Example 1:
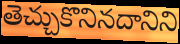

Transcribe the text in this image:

తెచ్చుకొనినదానిని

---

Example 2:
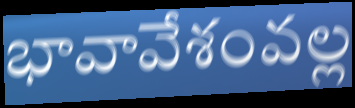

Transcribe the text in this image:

భావావేశంవల్ల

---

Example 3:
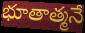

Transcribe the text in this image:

భూతాత్మనే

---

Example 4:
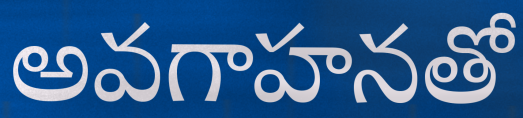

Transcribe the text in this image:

అవగాహనతో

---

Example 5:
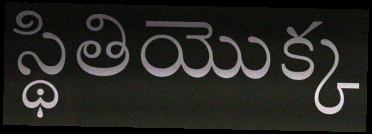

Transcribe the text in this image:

స్థితియొక్క